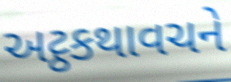
અટ્ઠકથાવચને